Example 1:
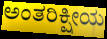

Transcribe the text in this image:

ಅಂತರಿಕ್ಷೀಯ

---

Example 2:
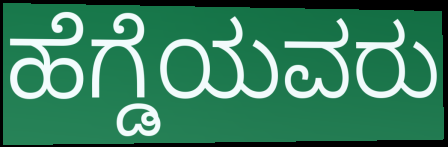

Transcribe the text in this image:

ಹೆಗ್ಡೆಯವರು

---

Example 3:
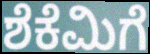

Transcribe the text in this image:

ಶೆಕೆಮಿಗೆ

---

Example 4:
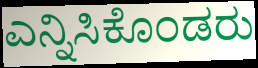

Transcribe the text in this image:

ಎನ್ನಿಸಿಕೊಂಡರು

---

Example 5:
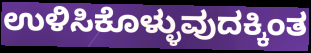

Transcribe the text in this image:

ಉಳಿಸಿಕೊಳ್ಳುವುದಕ್ಕಿಂತ